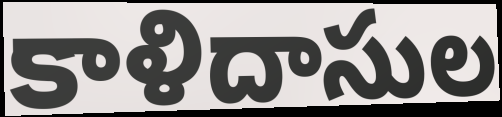
కాళిదాసుల